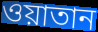
ওয়াতান